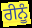
ਰੀਨੂੰ